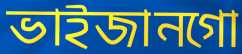
ভাইজানগো